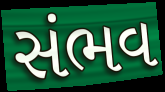
સંભવ